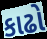
કાઢો